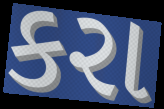
કરા